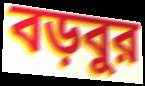
বড়বুর